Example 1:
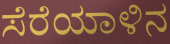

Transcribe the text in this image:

ಸೆರೆಯಾಳಿನ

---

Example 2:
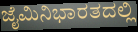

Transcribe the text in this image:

ಜೈಮಿನಿಭಾರತದಲ್ಲಿ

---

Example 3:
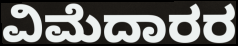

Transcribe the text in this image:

ವಿಮೆದಾರರ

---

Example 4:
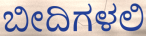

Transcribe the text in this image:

ಬೀದಿಗಳಲಿ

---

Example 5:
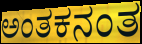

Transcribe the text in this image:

ಅಂತಕನಂತ